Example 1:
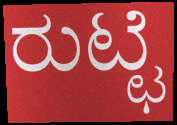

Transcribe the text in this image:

ರುಟ್ಟೆ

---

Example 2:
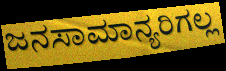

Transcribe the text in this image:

ಜನಸಾಮಾನ್ಯರಿಗಲ್ಲ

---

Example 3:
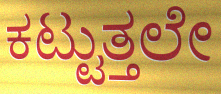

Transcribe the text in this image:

ಕಟ್ಟುತ್ತಲೇ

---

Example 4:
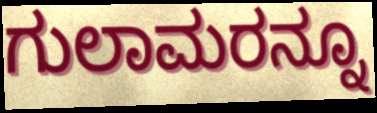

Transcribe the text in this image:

ಗುಲಾಮರನ್ನೂ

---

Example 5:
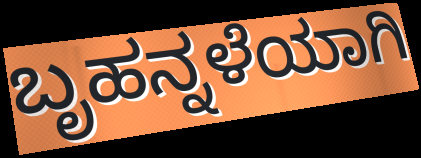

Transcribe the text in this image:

ಬೃಹನ್ನಳೆಯಾಗಿ